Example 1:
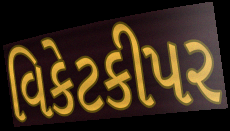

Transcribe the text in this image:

વિકેટકીપર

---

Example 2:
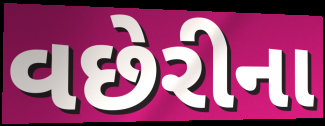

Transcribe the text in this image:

વછેરીના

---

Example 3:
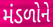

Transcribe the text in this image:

મંડળોને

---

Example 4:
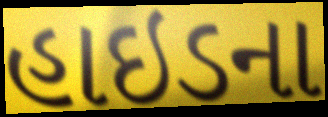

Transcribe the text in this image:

હાઇડના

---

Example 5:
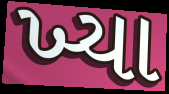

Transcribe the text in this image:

ખ્યા